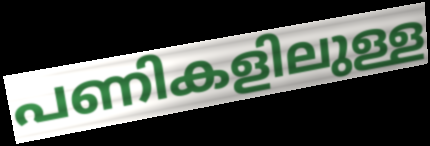
പണികളിലുള്ള